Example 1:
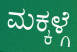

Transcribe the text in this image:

ಮಕ್ಕಳ್ಗೆ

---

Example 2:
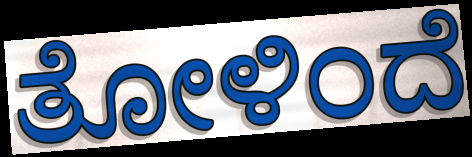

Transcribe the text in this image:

ತೋಳಿಂದೆ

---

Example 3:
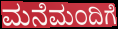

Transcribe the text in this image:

ಮನೆಮಂದಿಗೆ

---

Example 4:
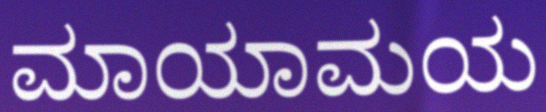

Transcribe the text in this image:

ಮಾಯಾಮಯ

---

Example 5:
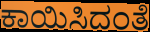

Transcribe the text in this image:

ಕಾಯಿಸಿದಂತೆ